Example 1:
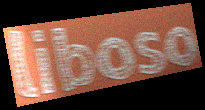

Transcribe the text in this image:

liboso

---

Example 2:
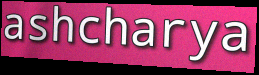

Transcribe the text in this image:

ashcharya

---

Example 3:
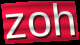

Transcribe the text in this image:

zoh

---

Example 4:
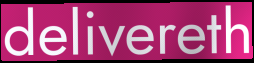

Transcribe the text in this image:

delivereth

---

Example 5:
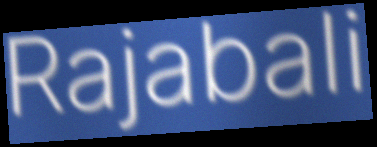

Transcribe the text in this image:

Rajabali